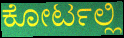
ಕೋರ್ಟಲ್ಲಿ